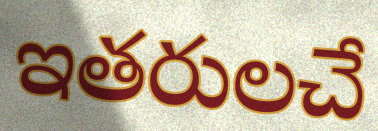
ఇతరులచే